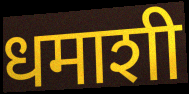
धमाशी